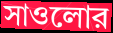
সাওলোর